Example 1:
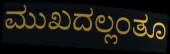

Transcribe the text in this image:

ಮುಖದಲ್ಲಂತೂ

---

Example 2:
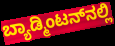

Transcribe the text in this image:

ಬ್ಯಾಡ್ಮಿಂಟನ್‌ನಲ್ಲಿ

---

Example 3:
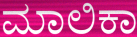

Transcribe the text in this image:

ಮಾಲಿಕಾ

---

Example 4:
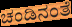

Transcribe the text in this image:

ಚಂಡಿನಂತೆ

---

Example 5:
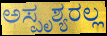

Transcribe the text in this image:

ಅಸ್ಪೃಶ್ಯರಲ್ಲ